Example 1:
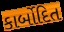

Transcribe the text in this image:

કાર્બોદિત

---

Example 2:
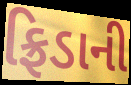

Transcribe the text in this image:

ફ્રિડાની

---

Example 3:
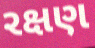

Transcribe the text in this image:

રક્ષણ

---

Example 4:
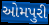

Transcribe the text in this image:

ઓમપુરી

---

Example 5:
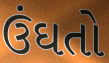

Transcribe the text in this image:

ઉંઘતો